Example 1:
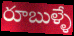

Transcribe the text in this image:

రూబుళ్ళే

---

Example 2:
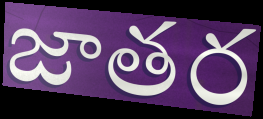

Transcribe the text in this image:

జాతర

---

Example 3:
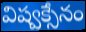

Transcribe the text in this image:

విష్వక్సేనం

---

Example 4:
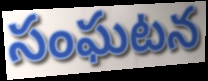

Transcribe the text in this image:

సంఘటన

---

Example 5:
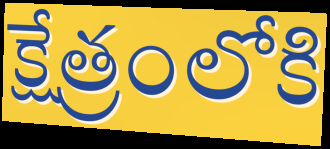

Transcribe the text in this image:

క్షేత్రంలోకి